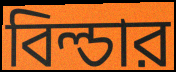
বিল্ডার